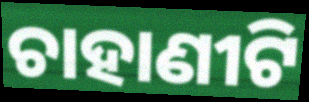
ଚାହାଣୀଟି